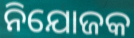
ନିଯୋଜକ